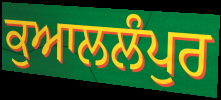
ਕੁਆਲਲੰਪੁਰ